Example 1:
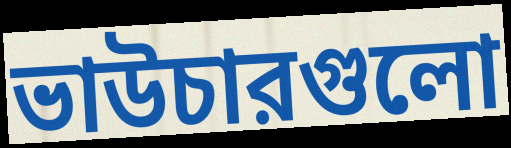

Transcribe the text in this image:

ভাউচারগুলো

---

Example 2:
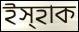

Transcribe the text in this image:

ইস্‌হাক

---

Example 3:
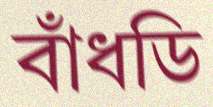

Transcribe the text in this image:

বাঁধডি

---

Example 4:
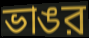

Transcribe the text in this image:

ভাঙর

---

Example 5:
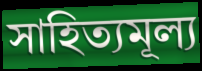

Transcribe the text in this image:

সাহিত্যমূল্য